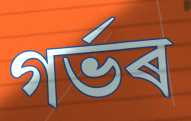
গৰ্ভৰ